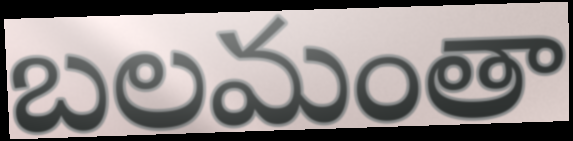
బలమంతా